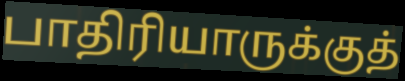
பாதிரியாருக்குத்